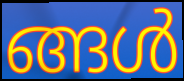
ങ്ങൾ